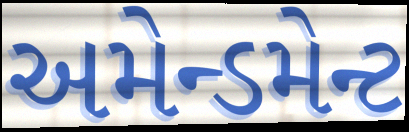
અમેન્ડમેન્ટ